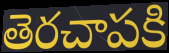
తెరచాపకి